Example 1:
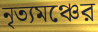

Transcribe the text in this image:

নৃত্যমঞ্চের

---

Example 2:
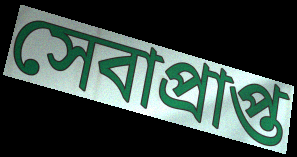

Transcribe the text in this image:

সেবাপ্রাপ্ত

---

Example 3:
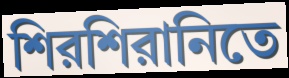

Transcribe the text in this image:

শিরশিরানিতে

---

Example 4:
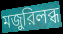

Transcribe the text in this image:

মজুরিলব্ধ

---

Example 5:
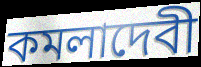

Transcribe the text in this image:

কমলাদেবী